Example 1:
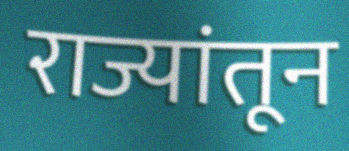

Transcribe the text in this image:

राज्यांतून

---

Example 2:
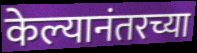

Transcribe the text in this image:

केल्यानंतरच्या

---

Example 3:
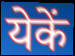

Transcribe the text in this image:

येकें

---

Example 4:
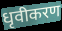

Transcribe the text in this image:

धृवीकरण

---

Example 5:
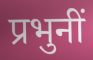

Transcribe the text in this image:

प्रभुनीं